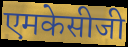
एमकेसीजी